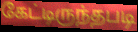
கேட்டிருந்தபடி